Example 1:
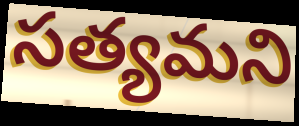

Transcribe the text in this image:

సత్యమని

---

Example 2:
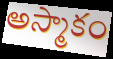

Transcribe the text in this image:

అస్మాకం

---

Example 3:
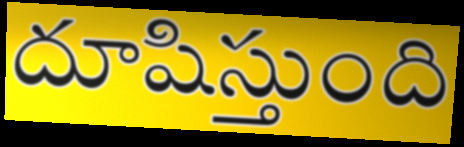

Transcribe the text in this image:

దూషిస్తుంది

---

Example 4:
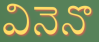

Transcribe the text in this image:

వినెనొ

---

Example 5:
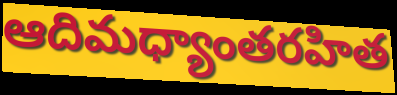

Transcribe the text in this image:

ఆదిమధ్యాంతరహిత